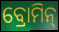
ବ୍ରୋମିନ୍